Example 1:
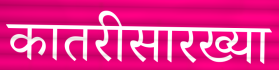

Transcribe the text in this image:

कातरीसारख्या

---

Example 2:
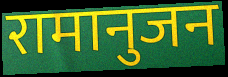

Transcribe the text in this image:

रामानुजन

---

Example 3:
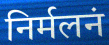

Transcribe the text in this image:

निर्मलनं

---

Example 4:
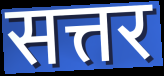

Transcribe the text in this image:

सत्तर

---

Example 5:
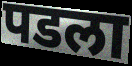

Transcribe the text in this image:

पडला